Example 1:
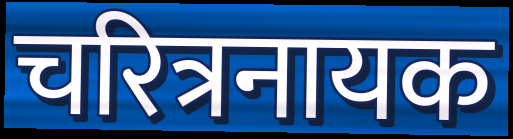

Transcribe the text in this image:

चरित्रनायक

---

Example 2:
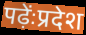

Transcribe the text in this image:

पढ़ेंःप्रदेश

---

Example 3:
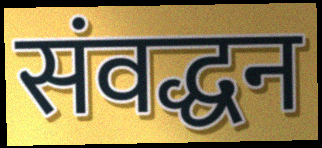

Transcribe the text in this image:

संवद्धन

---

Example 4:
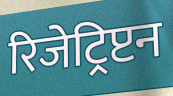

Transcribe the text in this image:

रिजेट्रिप्टन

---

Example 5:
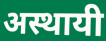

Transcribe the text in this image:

अस्थायी